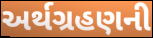
અર્થગ્રહણની